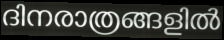
ദിനരാത്രങ്ങളിൽ